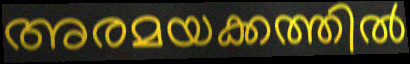
അരമയക്കത്തിൽ